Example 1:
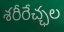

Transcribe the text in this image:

శరీరేచ్ఛల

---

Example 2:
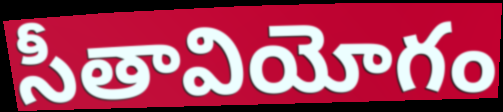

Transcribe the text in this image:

సీతావియోగం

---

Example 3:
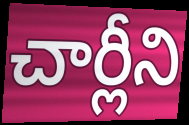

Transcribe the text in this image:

చార్లీని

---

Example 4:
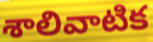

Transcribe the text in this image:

శాలివాటిక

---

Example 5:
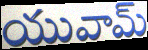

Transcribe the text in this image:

యువామ్